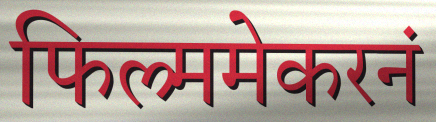
फिल्ममेकरनं